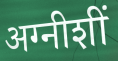
अग्नीशीं